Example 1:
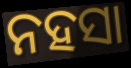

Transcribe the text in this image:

ନହସା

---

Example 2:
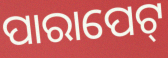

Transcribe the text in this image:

ପାରାପେଟ୍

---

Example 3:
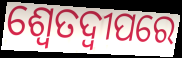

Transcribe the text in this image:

ଶ୍ୱେତଦ୍ୱୀପରେ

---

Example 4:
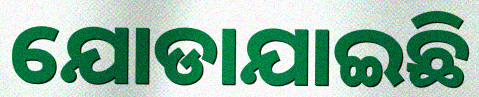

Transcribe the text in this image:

ଯୋଡାଯାଇଛି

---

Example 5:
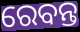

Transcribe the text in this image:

ରେବନ୍ତ